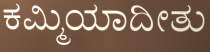
ಕಮ್ಮಿಯಾದೀತು